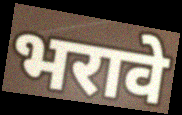
भरावे